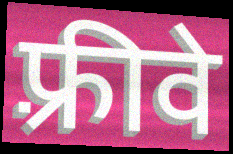
फ़्रीवे